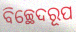
ବିଚ୍ଛେଦରୂପ